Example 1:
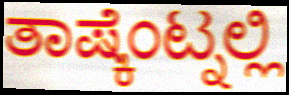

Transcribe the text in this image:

ತಾಷ್ಕೆಂಟ್ನಲ್ಲಿ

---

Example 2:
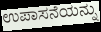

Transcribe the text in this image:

ಉಪಾಸನೆಯನ್ನು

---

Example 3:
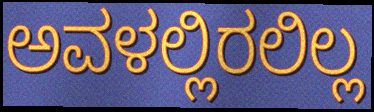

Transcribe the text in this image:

ಅವಳಲ್ಲಿರಲಿಲ್ಲ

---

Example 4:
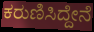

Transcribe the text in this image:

ಕರುಣಿಸಿದ್ದೇನೆ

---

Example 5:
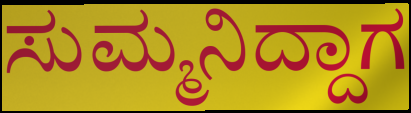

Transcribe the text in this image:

ಸುಮ್ಮನಿದ್ದಾಗ